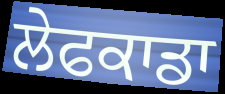
ਲੇਫਕਾਡਾ